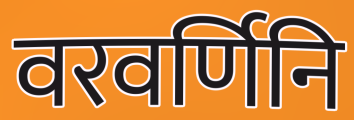
वरवर्णिनि